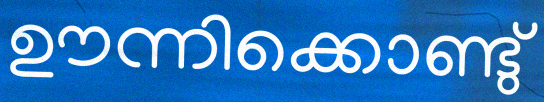
ഊന്നിക്കൊണ്ടു്